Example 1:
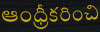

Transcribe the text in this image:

ఆంధ్రీకరించి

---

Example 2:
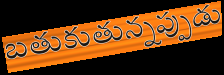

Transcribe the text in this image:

బతుకుతున్నప్పుడు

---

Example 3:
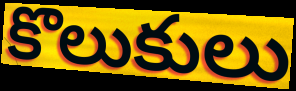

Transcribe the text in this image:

కొలుకులు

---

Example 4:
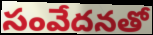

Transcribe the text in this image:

సంవేదనతో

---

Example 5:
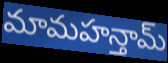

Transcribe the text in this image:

మామహన్తామ్